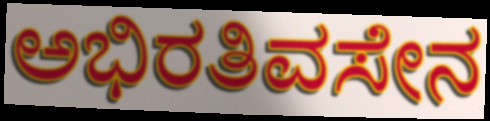
ಅಭಿರತಿವಸೇನ